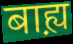
बाह्य़